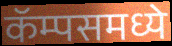
कॅम्पसमध्ये